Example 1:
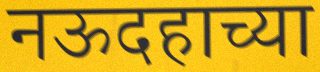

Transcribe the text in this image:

नऊदहाच्या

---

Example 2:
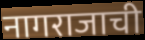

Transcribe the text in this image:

नागराजाची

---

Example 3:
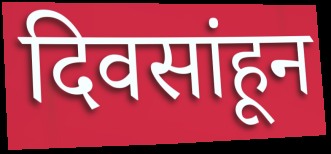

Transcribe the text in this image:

दिवसांहून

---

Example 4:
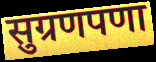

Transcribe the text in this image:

सुग्रणपणा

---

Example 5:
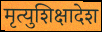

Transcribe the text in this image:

मृत्युशिक्षादेश